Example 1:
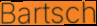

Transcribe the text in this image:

Bartsch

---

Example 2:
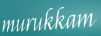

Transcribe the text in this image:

murukkam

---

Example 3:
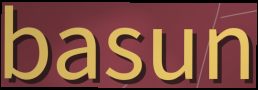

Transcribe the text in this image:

basun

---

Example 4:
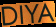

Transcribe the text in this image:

DIYA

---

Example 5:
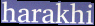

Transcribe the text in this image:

harakhi